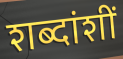
शब्दांशीं